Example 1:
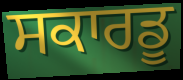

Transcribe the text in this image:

ਸਕਾਰਡੂ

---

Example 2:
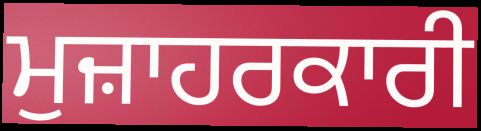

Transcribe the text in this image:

ਮੁਜ਼ਾਹਰਕਾਰੀ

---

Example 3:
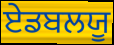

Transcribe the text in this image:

ਏਡਬਲਯੂ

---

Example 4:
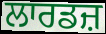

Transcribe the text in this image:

ਲਾਰਡਜ਼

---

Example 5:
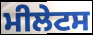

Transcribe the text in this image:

ਮੀਲੇਟਸ